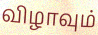
விழாவும்